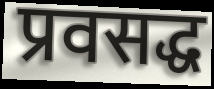
प्रवसद्ध